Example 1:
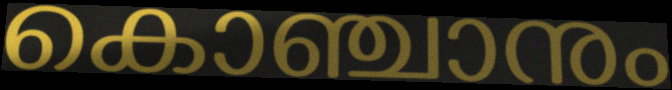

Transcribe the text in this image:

കൊഞ്ചാനും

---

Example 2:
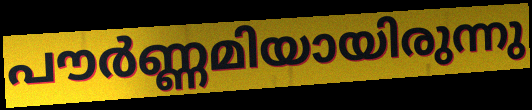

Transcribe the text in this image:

പൗർണ്ണമിയായിരുന്നു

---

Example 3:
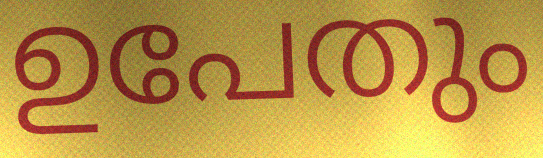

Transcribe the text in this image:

ഉപേതും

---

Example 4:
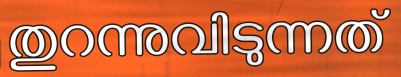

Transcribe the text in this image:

തുറന്നുവിടുന്നത്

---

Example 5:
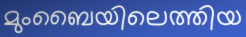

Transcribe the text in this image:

മുംബൈയിലെത്തിയ